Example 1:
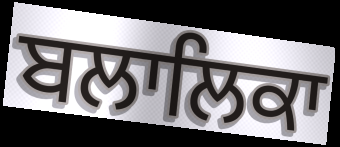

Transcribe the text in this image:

ਬਲਾਲਿਕਾ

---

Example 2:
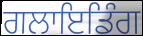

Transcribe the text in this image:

ਗਲਾਇਡਿੰਗ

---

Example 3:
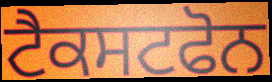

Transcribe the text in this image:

ਟੈਕਸਟਫੋਨ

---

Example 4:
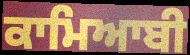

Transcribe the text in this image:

ਕਾਮਿਆਬੀ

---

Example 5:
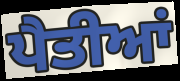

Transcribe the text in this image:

ਪੈਤੀਆਂ